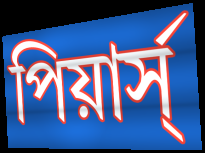
পিয়ার্স্